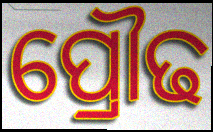
ପ୍ରୌଢ